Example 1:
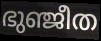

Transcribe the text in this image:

ഭുഞ്ജീത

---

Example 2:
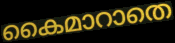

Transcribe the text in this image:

കൈമാറാതെ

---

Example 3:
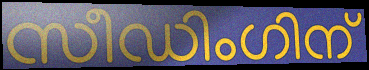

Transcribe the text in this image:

സീഡിംഗിന്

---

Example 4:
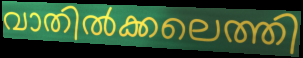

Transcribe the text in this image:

വാതിൽക്കലെത്തി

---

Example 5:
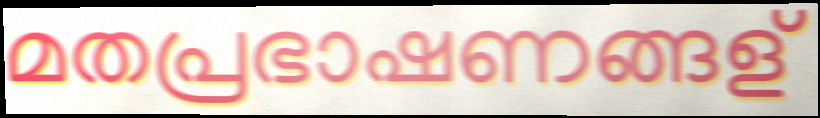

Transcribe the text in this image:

മതപ്രഭാഷണങ്ങള്